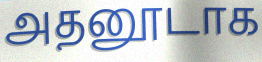
அதனூடாக